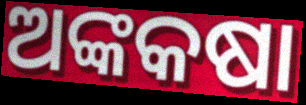
ଅଙ୍କକଷା